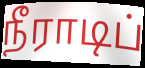
நீராடிப்